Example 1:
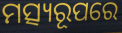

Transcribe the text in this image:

ମତ୍ସ୍ୟରୂପରେ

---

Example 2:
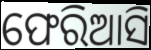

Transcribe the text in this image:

ଫେରିଆସି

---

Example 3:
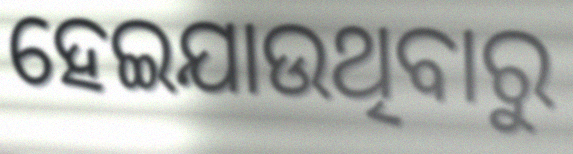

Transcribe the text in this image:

ହେଇଯାଉଥିବାରୁ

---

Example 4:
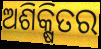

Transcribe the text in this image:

ଅଶିକ୍ଷିତର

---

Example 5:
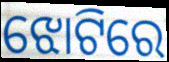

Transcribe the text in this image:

ଝୋଟିରେ